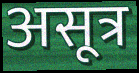
असूत्र